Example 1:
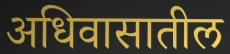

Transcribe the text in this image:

अधिवासातील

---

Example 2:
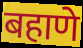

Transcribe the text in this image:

बहाणे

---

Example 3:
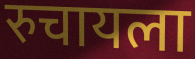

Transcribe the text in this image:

रुचायला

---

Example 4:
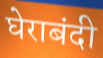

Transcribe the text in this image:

घेराबंदी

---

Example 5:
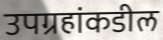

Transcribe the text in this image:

उपग्रहांकडील